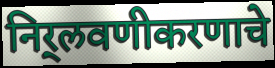
निर्लवणीकरणाचे